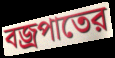
বজ্রপাতের